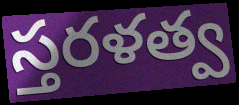
స్తరళత్వ